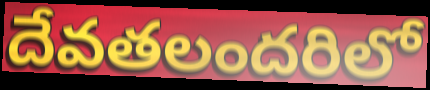
దేవతలందరిలో